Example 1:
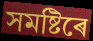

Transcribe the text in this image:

সমষ্টিৰে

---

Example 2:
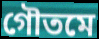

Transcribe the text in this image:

গৌতমে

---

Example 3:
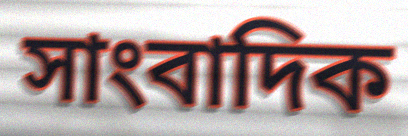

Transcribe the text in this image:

সাংবাদিক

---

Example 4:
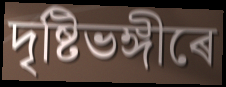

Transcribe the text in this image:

দৃষ্টিভঙ্গীৰে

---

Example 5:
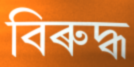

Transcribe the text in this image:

বিৰুদ্ধ